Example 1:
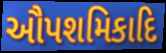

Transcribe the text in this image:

ઔપશમિકાદિ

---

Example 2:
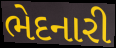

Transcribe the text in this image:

ભેદનારી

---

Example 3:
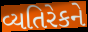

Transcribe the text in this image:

વ્યતિરેકને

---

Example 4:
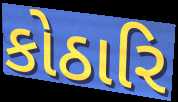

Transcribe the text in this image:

કોઠારિ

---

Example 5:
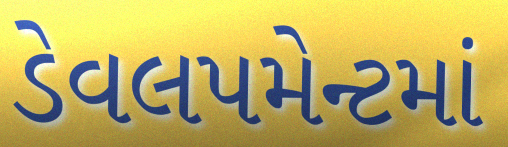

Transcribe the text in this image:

ડેવલપમેન્ટમાં